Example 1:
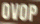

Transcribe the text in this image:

OVOP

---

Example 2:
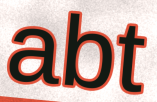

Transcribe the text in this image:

abt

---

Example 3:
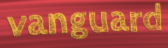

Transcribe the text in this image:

vanguard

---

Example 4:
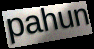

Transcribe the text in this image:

pahun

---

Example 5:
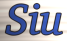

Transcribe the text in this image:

Siu